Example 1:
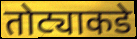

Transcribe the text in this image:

तोट्याकडे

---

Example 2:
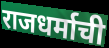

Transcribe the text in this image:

राजधर्माची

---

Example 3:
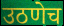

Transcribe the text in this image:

उठणेच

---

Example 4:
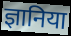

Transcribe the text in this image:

ज्ञानिया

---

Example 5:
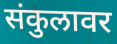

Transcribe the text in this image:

संकुलावर